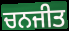
ਚਨਜੀਤ